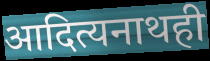
आदित्यनाथही